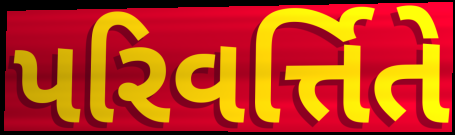
પરિવર્ત્તિતે